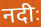
नदीः